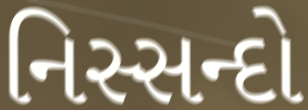
નિસ્સન્દો